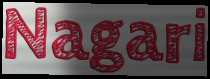
Nagari